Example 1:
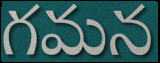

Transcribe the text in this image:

గమన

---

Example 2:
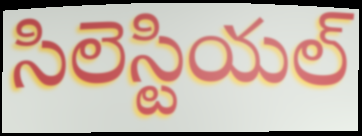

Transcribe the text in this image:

సిలెస్టియల్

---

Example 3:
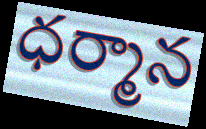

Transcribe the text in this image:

ధర్మాన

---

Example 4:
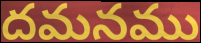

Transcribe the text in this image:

దమనము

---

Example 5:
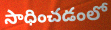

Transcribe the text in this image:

సాధించడంలో